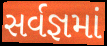
સર્વજ્ઞમાં